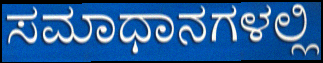
ಸಮಾಧಾನಗಳಲ್ಲಿ